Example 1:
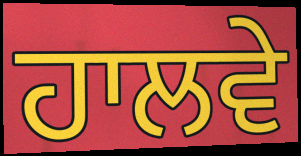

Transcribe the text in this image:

ਹਾਲਵੇ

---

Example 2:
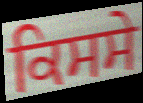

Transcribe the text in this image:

ਕਿਸਸੇ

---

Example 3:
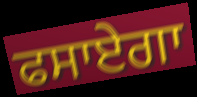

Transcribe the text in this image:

ਫਸਾਏਗਾ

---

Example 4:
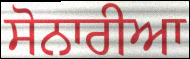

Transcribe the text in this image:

ਸੋਨਾਰੀਆ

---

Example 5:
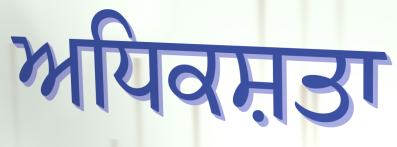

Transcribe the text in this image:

ਅਧਿਕਸ਼ਤਾ